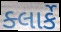
ક્લાર્કે